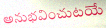
అనుభవించుటయే